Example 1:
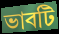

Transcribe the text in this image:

ভাবটি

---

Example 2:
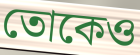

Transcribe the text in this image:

তোকেও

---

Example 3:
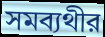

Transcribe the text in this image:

সমব্যথীর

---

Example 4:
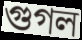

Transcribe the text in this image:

গুগল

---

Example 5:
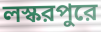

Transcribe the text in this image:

লস্করপুরে